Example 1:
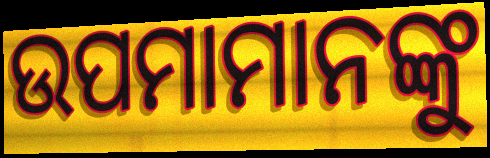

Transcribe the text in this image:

ଉପମାମାନଙ୍କୁ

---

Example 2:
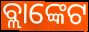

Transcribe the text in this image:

ବ୍ଲାଙ୍କେଟ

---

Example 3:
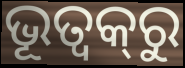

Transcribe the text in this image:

ଭୂତ୍ଵକ୍‌ରୁ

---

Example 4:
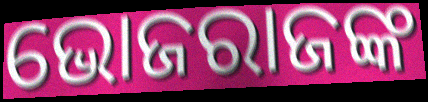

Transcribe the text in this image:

ଭୋଜରାଜଙ୍କ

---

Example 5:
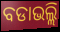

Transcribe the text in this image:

ବଡାଭଲ୍ଲି